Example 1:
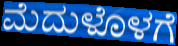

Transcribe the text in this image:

ಮೆದುಳೊಳಗೆ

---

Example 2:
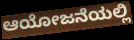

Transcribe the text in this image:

ಆಯೋಜನೆಯಲ್ಲಿ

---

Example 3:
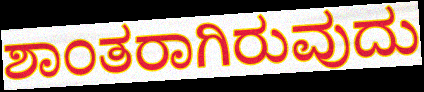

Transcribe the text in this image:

ಶಾಂತರಾಗಿರುವುದು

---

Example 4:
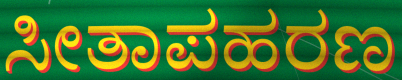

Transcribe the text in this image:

ಸೀತಾಪಹರಣ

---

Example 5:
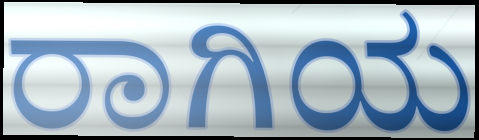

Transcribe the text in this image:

ರಾಗಿಯ